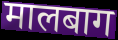
मालबाग